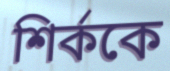
শির্ককে